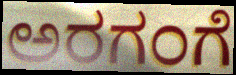
ಅರಗಂಗೆ